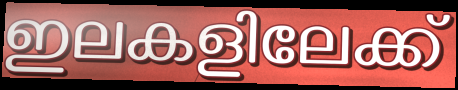
ഇലകളിലേക്ക്